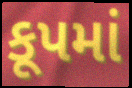
કૂપમાં